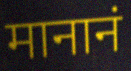
मानानं